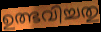
ഉത്ഭവിച്ചതു